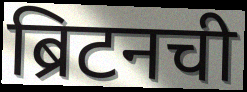
ब्रिटनची